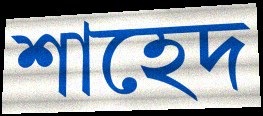
শাহেদ